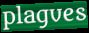
plagues